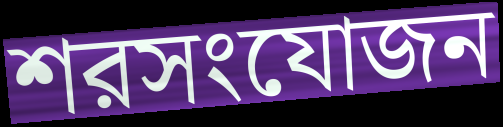
শরসংযোজন